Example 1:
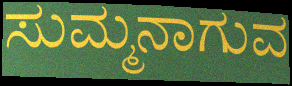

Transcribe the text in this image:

ಸುಮ್ಮನಾಗುವ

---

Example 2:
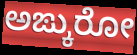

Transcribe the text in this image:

ಅಙ್ಕುರೋ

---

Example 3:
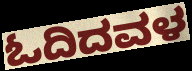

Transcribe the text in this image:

ಓದಿದವಳ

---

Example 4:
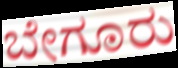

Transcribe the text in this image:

ಬೇಗೂರು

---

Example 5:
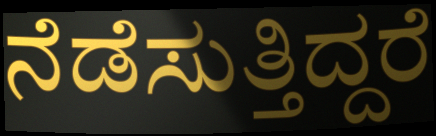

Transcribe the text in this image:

ನೆಡೆಸುತ್ತಿದ್ದರೆ